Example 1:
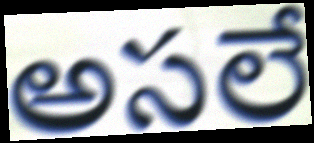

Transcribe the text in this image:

అసలే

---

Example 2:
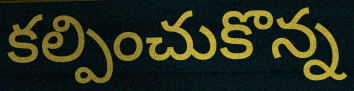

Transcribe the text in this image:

కల్పించుకొన్న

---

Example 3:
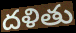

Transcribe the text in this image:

దళితు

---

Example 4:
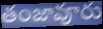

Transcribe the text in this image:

తంజావూరు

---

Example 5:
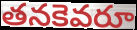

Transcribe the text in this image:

తనకెవరూ